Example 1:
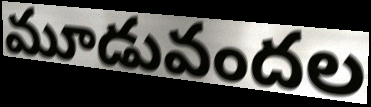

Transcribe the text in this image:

మూడువందల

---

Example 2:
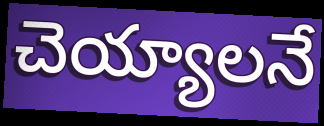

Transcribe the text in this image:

చెయ్యాలనే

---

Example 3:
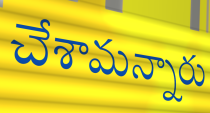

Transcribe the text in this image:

చేశామన్నారు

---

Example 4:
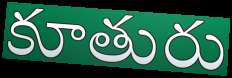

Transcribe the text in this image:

కూతురు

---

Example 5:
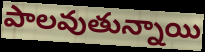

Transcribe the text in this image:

పాలవుతున్నాయి